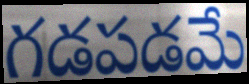
గడపడమే